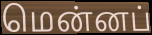
மென்னப்